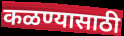
कळण्यासाठी